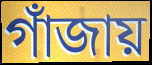
গাঁজায়